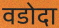
वडोदा